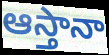
ఆస్తానా